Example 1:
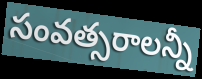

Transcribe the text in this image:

సంవత్సరాలన్నీ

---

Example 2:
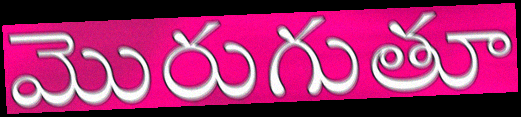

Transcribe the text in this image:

మొరుగుతూ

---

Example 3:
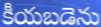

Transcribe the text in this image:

కీయబడెను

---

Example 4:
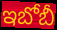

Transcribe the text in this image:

ఇబోబీ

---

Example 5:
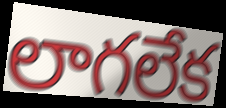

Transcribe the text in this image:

లాగలేక